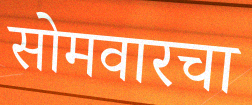
सोमवारचा